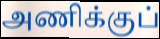
அணிக்குப்